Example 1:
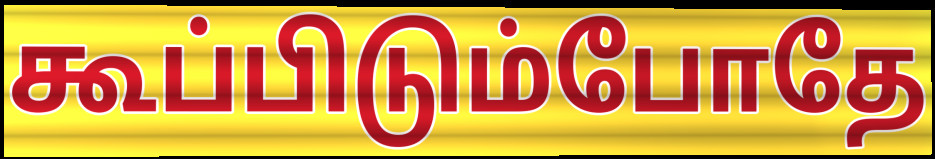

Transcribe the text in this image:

கூப்பிடும்போதே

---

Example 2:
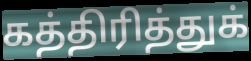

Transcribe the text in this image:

கத்திரித்துக்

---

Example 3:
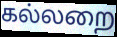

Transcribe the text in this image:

கல்லறை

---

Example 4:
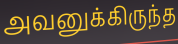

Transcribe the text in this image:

அவனுக்கிருந்த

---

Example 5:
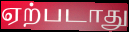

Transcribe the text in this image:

ஏற்படாது